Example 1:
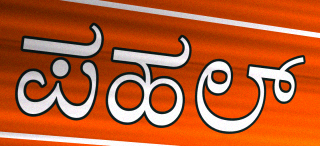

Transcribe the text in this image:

ಪಹಲ್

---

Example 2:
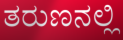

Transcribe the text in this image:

ತರುಣನಲ್ಲಿ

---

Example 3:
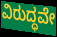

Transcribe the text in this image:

ವಿರುದ್ಧವೇ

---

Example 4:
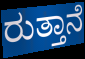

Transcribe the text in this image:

ರುತ್ತಾನೆ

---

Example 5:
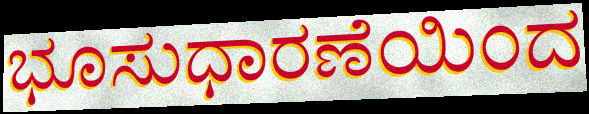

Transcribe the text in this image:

ಭೂಸುಧಾರಣೆಯಿಂದ